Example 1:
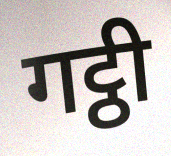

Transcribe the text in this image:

गट्ठी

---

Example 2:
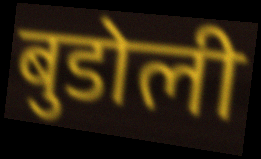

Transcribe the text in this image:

बुडोली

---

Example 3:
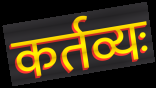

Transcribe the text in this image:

कर्तव्यः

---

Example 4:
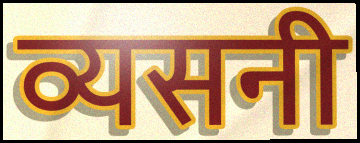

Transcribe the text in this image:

व्यसनी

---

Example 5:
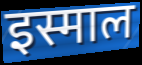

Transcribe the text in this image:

इस्माल